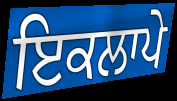
ਇਕਲਾਪੇ